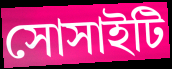
সোসাইটি